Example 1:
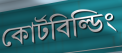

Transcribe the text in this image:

কোর্টবিল্ডিং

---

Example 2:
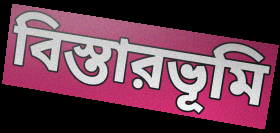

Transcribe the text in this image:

বিস্তারভূমি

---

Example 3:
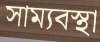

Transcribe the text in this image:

সাম্যবস্থা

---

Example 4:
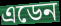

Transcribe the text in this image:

এডেন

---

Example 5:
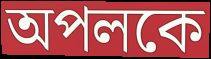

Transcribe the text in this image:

অপলকে